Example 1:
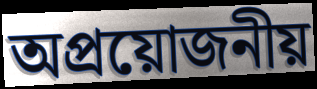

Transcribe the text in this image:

অপ্রয়োজনীয়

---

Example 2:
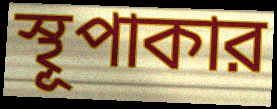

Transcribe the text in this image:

স্থূপাকার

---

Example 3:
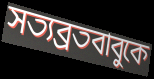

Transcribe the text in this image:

সত্যব্রতবাবুকে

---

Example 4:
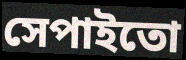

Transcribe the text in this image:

সেপাইতো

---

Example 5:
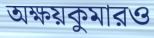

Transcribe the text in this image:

অক্ষয়কুমারও